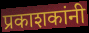
प्रकाशकांनी